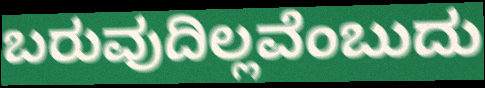
ಬರುವುದಿಲ್ಲವೆಂಬುದು